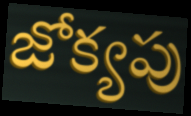
జోక్యపు